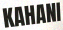
KAHANI